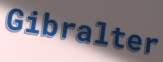
Gibralter